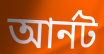
আর্নট